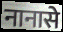
नानासे